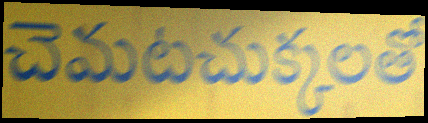
చెమటచుక్కలతో